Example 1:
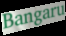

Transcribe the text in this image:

Bangaru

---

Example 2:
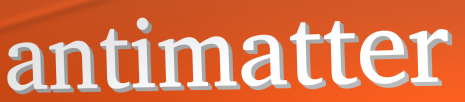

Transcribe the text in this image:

antimatter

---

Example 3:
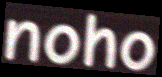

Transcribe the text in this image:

noho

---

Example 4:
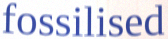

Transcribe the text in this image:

fossilised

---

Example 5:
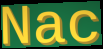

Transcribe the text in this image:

Nac